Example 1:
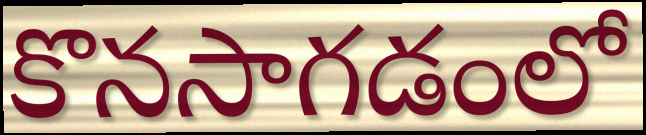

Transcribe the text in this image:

కొనసాగడంలో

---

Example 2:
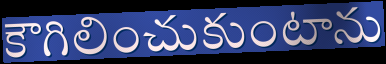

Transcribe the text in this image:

కౌగిలించుకుంటాను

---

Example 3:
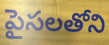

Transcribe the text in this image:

పైసలతోని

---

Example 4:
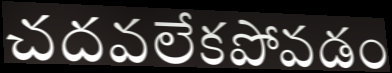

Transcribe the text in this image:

చదవలేకపోవడం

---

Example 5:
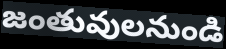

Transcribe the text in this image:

జంతువులనుండి